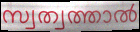
സ്വത്വത്താൽ